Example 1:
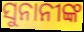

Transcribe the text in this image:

ସୁନାନୀଙ୍କ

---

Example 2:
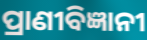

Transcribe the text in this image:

ପ୍ରାଣୀବିଜ୍ଞାନୀ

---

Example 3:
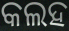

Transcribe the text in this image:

କଲହ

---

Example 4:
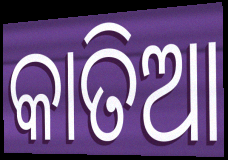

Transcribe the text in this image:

କାତିଆ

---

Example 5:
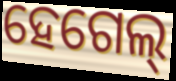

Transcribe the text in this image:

ହେଗେଲ୍